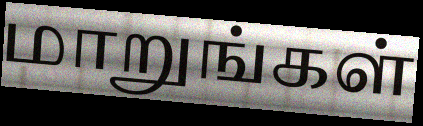
மாறுங்கள்